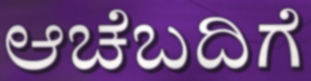
ಆಚೆಬದಿಗೆ